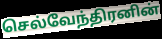
செல்வேந்திரனின்